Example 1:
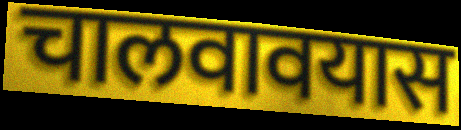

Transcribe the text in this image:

चालवावयास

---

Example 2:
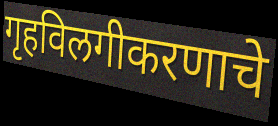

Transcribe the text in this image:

गृहविलगीकरणाचे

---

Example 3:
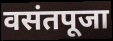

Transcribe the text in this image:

वसंतपूजा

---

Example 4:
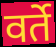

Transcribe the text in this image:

वर्ते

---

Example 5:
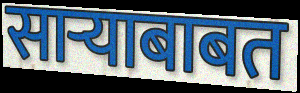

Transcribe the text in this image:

साऱ्याबाबत